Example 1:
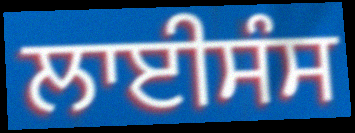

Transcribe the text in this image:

ਲਾਈਸੰਸ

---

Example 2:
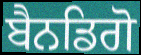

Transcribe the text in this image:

ਬੈਨਡਿਗੋ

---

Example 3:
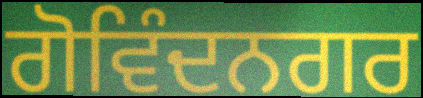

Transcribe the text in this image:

ਗੋਵਿੰਦਨਗਰ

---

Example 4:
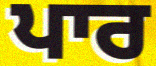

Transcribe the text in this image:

ਪਾਰ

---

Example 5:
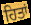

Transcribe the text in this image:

ਹਿਤਾਂ